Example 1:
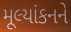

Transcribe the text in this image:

મૂલ્યાંકનને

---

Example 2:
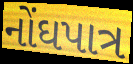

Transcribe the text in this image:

નોંઘપાત્ર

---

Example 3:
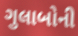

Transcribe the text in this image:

ગુલાબોની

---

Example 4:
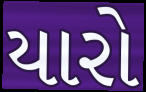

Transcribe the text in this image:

યારો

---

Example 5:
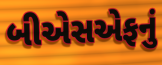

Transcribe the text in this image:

બીએસએફનું